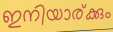
ഇനിയാര്ക്കും